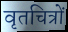
वृतचित्रों